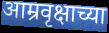
आम्रवृक्षाच्या